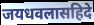
जयधवलासहिदे